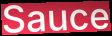
Sauce